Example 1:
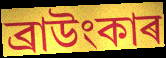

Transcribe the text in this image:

ব্ৰাউংকাৰ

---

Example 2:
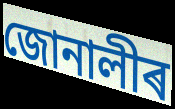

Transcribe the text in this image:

জোনালীৰ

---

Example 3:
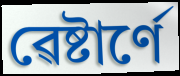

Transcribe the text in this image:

ৱেষ্টাৰ্ণে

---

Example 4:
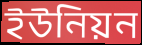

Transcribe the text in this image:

ইউনিয়ন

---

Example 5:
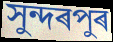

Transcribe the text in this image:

সুন্দৰপুৰ